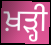
ਖ਼ੜ੍ਹੀ